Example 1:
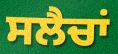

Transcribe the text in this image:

ਸਲੈਚਾਂ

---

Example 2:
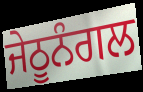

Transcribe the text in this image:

ਜੇਠੂਨੰਗਲ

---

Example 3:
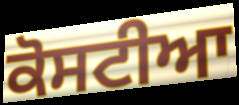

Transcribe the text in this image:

ਕੋਸਟੀਆ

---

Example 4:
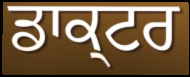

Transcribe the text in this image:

ਡਾਕ੍ਟਰ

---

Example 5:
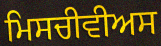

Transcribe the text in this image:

ਮਿਸਚੀਵੀਅਸ